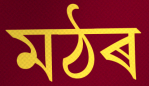
মঠৰ